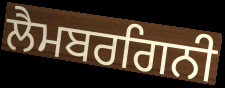
ਲੈਮਬਰਗਿਨੀ